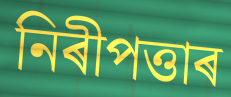
নিৰীপত্তাৰ